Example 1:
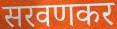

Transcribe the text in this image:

सरवणकर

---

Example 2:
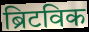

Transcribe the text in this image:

ब्रिटविक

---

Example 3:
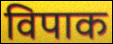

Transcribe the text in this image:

विपाक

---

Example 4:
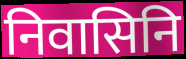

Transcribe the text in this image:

निवासिनि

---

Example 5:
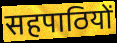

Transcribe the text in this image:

सहपाठियों